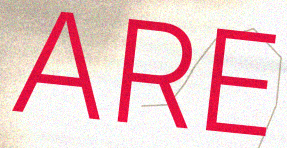
ARE